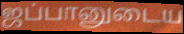
ஜப்பானுடைய